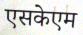
एसकेएम